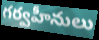
గర్వహీనులు